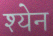
श्येन